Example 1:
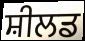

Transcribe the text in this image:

ਸ਼ੀਲਡ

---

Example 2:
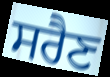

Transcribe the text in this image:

ਸਰੈਣ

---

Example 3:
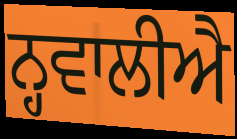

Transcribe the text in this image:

ਨ੍ਹਵਾਲੀਐ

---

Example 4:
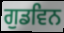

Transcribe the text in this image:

ਗੁਡਵਿਨ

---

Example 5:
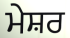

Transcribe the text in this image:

ਮੇਸ਼ਰ